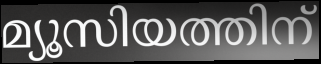
മ്യൂസിയത്തിന്